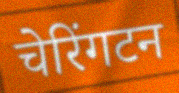
चेरिंगटन